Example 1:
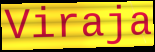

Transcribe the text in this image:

Viraja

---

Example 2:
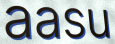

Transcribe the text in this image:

aasu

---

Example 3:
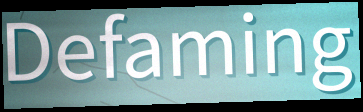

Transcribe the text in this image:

Defaming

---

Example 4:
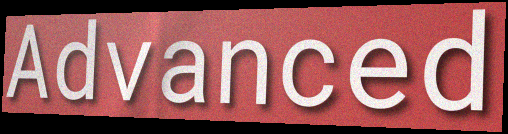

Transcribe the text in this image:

Advanced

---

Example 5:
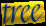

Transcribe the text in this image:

tree